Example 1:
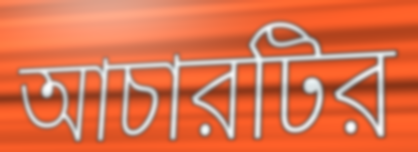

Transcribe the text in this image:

আচারটির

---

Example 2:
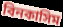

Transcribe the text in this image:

বিনকাসিম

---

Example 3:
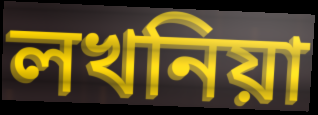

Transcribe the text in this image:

লখনিয়া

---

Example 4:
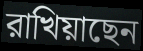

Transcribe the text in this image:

রাখিয়াছেন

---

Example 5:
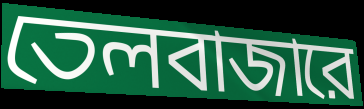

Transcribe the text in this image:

তেলবাজারে